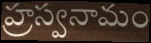
హ్రస్వనామం